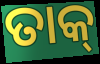
ତାକ୍